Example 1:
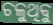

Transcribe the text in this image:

ଚଳୁଥିବୁ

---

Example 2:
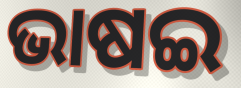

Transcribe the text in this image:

ଭାଷଇ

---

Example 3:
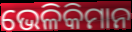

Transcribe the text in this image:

ଭେଳିକିମାନ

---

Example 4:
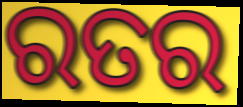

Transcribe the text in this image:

ରତର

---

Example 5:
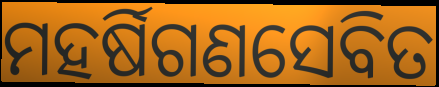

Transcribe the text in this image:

ମହର୍ଷିଗଣସେବିତ